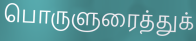
பொருளுரைத்துக்